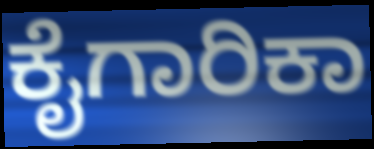
ಕೈಗಾರಿಕಾ